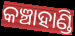
କଞ୍ଚାହାଣ୍ଡି